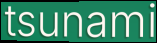
tsunami